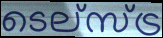
ടെല്സ്ട്ര